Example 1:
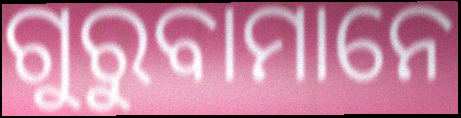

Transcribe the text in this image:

ଗୁରୁବାମାନେ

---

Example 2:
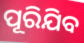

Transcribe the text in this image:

ପୂରିଯିବ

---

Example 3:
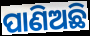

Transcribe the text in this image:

ପାଣିଅଛି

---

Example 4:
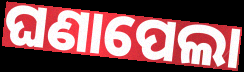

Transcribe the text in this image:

ଘଣାପେଲା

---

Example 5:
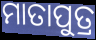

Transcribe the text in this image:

ମାତାପୁତ୍ର